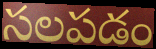
సలపడం